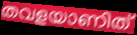
തവളയാണിത്